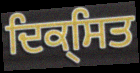
ਦਿਕ੍ਸਿਤ